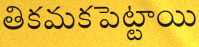
తికమకపెట్టాయి